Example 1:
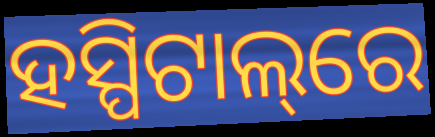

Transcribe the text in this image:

ହସ୍ପିଟାଲ୍‌ରେ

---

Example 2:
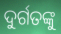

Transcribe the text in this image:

ଦୁର୍ଗତଙ୍କୁ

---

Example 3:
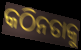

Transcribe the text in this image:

କଠିନତାକୁ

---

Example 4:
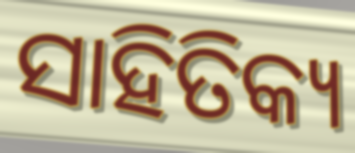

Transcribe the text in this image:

ସାହିତିକ୍ୟ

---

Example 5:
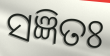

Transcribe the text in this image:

ସଜ୍ଞିତଃ